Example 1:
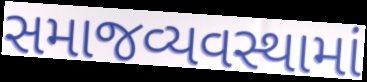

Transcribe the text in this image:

સમાજવ્યવસ્થામાં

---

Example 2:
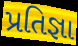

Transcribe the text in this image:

પ્રતિજ્ઞા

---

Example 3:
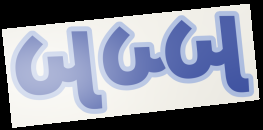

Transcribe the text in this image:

બબ્બ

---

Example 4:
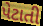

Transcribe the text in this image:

પેટાતી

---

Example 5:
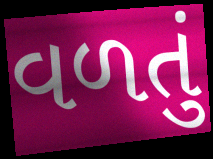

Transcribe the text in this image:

વળતું